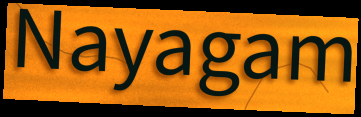
Nayagam